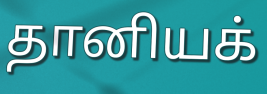
தானியக்